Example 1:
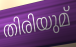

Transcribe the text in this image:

തിരിയുമ്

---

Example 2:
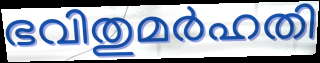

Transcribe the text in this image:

ഭവിതുമർഹതി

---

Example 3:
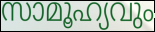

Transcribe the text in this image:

സാമൂഹ്യവും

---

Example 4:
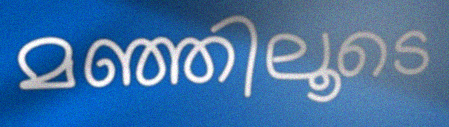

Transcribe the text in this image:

മഞ്ഞിലൂടെ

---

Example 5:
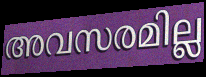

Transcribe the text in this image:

അവസരമില്ല